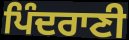
ਪਿੰਦਰਾਣੀ